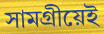
সামগ্ৰীয়েই